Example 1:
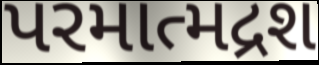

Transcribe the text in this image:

પરમાત્મદ્રશ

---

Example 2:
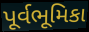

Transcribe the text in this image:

પૂર્વભૂમિકા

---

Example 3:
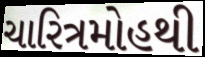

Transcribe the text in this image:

ચારિત્રમોહથી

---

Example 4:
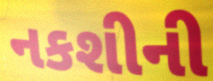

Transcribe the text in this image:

નકશીની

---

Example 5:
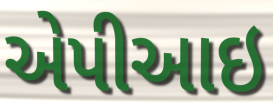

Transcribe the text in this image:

એપીઆઇ